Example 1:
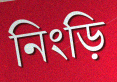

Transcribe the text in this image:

নিংড়ি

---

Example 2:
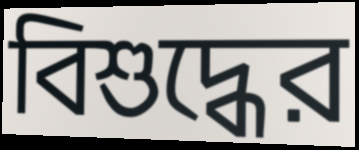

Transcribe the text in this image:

বিশুদ্ধের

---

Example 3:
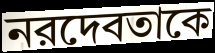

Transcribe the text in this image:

নরদেবতাকে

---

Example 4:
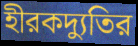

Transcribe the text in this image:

হীরকদ্যুতির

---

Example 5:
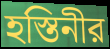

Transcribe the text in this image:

হস্তিনীর